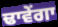
ਢਾਵੇਂਗਾ